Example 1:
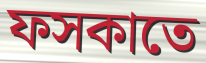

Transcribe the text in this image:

ফসকাতে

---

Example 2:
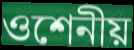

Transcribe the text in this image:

ওশেনীয়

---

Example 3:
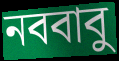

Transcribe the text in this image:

নববাবু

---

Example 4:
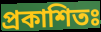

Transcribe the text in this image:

প্রকাশিতঃ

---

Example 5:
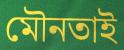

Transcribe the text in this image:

মৌনতাই